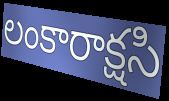
లంకారాక్షసి